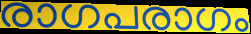
രാഗപരാഗം